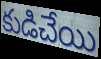
కుడిచేయి